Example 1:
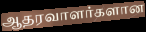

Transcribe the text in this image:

ஆதரவாளர்களான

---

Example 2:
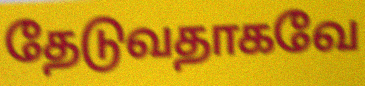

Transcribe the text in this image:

தேடுவதாகவே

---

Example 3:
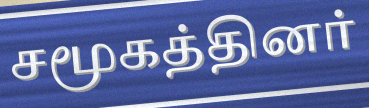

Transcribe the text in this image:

சமூகத்தினர்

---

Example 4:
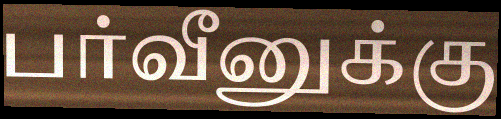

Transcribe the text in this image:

பர்வீனுக்கு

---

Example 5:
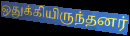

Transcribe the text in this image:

ஒதுக்கியிருந்தனர்